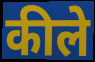
कीले